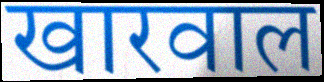
खारवाल